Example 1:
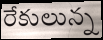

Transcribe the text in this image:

రేకులున్న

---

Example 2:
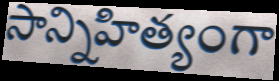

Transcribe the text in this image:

సాన్నిహిత్యంగా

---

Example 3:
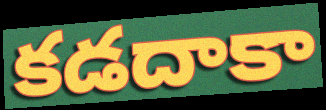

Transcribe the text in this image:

కడదాకా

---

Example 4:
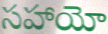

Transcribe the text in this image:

సహాయో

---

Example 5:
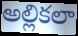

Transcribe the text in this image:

అల్లికలా